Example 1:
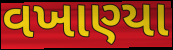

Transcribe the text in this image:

વખાણ્યા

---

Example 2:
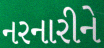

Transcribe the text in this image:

નરનારીને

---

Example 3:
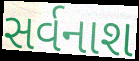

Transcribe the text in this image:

સર્વનાશ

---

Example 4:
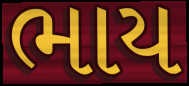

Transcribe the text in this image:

ભાય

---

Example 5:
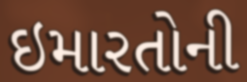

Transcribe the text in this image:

ઇમારતોની